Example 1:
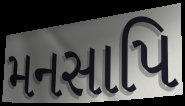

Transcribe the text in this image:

મનસાપિ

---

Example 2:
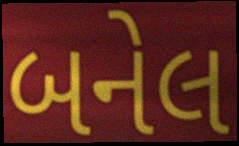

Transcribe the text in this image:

બનેલ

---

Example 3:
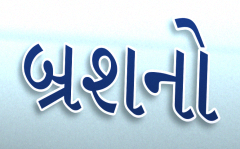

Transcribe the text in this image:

બ્રશનો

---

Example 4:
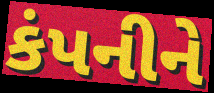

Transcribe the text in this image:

કંપનીને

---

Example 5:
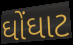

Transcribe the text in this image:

ઘોંઘાટ